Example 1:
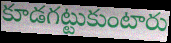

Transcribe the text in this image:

కూడగట్టుకుంటారు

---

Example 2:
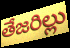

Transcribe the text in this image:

తేజరిల్లు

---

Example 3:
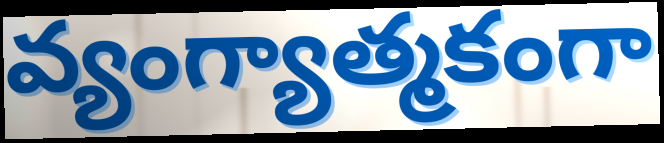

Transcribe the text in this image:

వ్యంగ్యాత్మకంగా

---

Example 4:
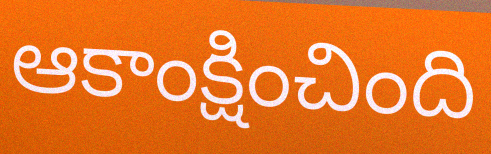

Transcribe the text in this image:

ఆకాంక్షించింది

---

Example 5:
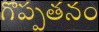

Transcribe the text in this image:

గొప్పతనం